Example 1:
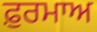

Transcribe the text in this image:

ਫ਼ੁਰਮਾਅ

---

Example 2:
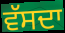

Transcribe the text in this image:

ਵੱਸਦਾ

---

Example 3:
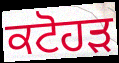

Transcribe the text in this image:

ਕਟੋਹੜ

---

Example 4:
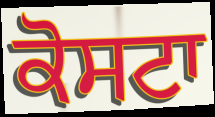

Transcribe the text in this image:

ਕੋਸਟਾ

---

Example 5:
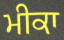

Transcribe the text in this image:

ਮੀਕਾ